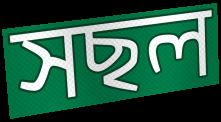
সছল